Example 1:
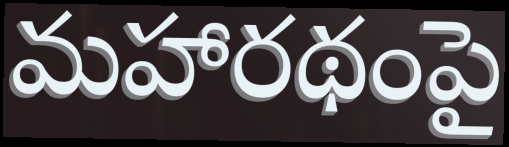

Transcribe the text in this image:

మహారథంపై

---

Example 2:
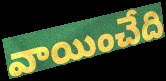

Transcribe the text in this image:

వాయించేది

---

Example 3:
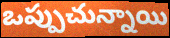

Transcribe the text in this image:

ఒప్పుచున్నాయి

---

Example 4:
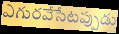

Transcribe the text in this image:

ఎగురవేసేటప్పుడు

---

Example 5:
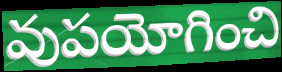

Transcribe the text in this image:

వుపయోగించి